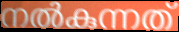
നൽകുന്നത്